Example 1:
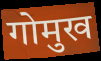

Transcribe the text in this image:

गोमुख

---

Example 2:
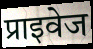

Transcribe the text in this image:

प्राइवेज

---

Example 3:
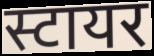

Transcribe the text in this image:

स्टायर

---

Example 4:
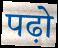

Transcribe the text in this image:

पढ़ो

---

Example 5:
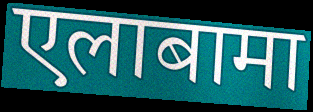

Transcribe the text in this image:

एलाबामा